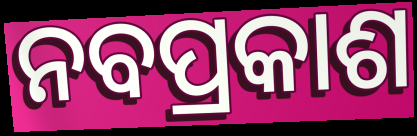
ନବପ୍ରକାଶ